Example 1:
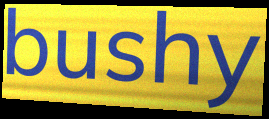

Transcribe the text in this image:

bushy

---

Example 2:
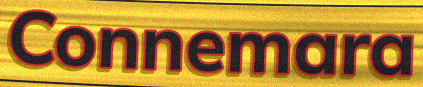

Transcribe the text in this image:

Connemara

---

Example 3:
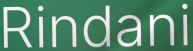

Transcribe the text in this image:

Rindani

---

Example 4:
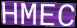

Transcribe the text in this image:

HMEC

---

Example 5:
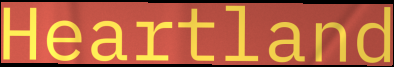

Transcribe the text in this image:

Heartland